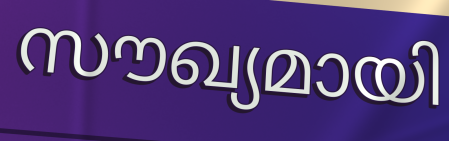
സൗഖ്യമായി